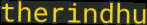
therindhu